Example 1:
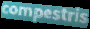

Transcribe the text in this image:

compestris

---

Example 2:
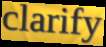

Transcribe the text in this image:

clarify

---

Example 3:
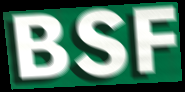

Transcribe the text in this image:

BSF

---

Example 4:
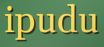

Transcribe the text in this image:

ipudu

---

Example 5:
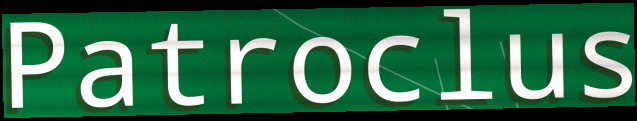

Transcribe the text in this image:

Patroclus